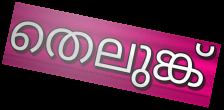
തെലുങ്ക്